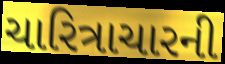
ચારિત્રાચારની